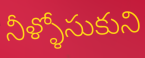
నీళ్ళోసుకుని